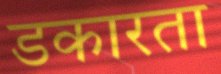
डकारता